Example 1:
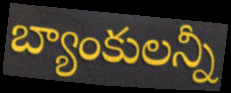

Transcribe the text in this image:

బ్యాంకులన్నీ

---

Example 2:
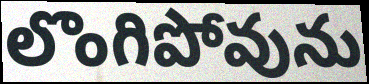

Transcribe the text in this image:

లొంగిపోవును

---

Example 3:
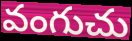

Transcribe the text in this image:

వంగుచు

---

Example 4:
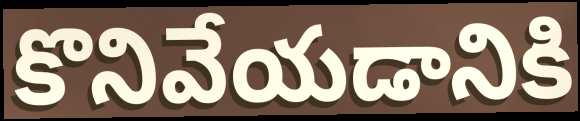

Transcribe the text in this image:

కొనివేయడానికి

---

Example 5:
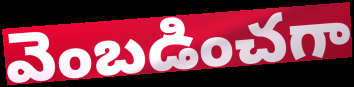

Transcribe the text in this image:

వెంబడించగా